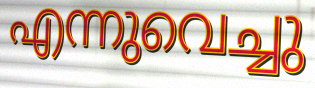
എന്നുവെച്ചു